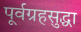
पूर्वग्रहसुद्धा